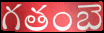
గతంబె